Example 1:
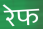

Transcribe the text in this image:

रेफ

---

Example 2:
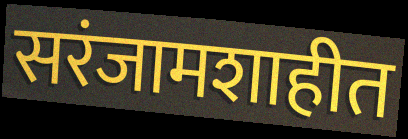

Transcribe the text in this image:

सरंजामशाहीत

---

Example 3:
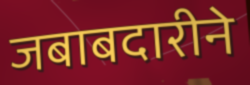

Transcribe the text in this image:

जबाबदारीने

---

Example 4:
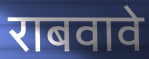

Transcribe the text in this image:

राबवावे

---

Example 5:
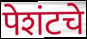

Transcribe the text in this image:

पेशंटचे